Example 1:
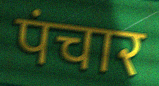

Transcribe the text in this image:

पंचार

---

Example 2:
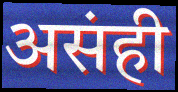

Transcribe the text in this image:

असंही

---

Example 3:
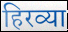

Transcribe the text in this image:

हिरव्या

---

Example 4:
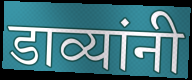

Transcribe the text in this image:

डाव्यांनी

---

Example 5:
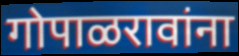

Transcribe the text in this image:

गोपाळरावांना